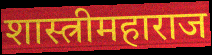
शास्त्रीमहाराज